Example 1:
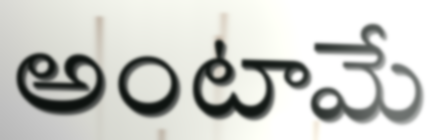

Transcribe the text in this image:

అంటామే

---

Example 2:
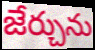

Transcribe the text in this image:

జేర్చును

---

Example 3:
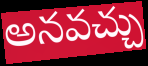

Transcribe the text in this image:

అనవచ్చు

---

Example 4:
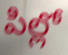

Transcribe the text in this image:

పిల్లో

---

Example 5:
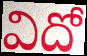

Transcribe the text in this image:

విదో